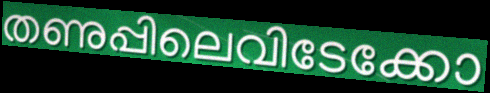
തണുപ്പിലെവിടേക്കോ